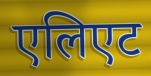
एलिएट